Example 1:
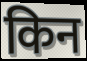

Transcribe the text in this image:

किन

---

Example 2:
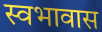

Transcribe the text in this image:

स्वभावास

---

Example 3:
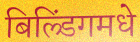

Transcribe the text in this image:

बिल्डिंगमधे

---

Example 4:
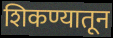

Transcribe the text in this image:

शिकण्यातून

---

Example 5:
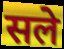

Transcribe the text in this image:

सले